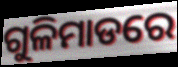
ଗୁଳିମାଡରେ